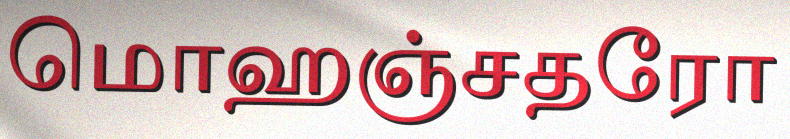
மொஹஞ்சதரோ